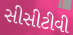
સીસીટીવી